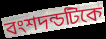
বংশদন্ডটিকে